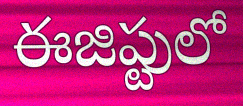
ఈజిప్టులో